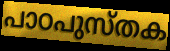
പാഠപുസ്തക